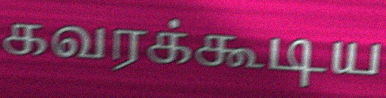
கவரக்கூடிய